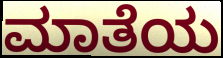
ಮಾತೆಯ